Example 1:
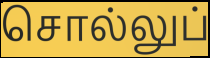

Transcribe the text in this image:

சொல்லுப்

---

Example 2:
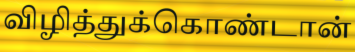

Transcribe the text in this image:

விழித்துக்கொண்டான்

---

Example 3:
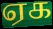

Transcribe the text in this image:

ஏக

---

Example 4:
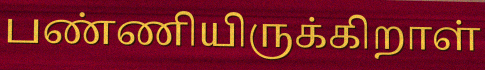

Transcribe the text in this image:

பண்ணியிருக்கிறாள்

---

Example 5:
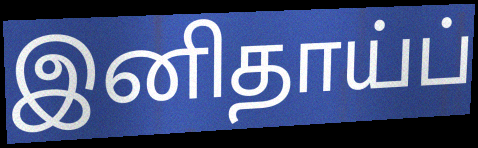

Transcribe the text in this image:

இனிதாய்ப்